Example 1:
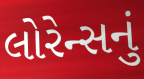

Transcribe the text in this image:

લોરેન્સનું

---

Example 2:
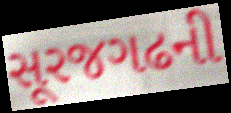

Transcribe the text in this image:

સૂરજગઢની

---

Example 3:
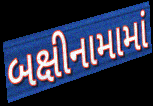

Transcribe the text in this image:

બક્ષીનામામાં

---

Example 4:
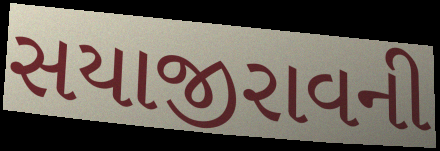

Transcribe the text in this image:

સયાજીરાવની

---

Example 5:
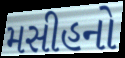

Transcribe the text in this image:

મસીહનો